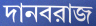
দানবরাজ